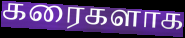
கரைகளாக